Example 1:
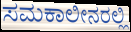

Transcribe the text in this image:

ಸಮಕಾಲೀನರಲ್ಲಿ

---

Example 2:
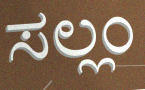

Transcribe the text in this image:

ಸಲ್ಲಂ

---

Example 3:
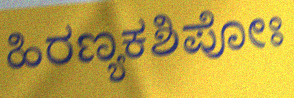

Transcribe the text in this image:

ಹಿರಣ್ಯಕಶಿಪೋಃ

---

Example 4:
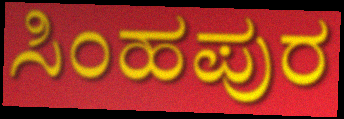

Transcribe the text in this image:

ಸಿಂಹಪುರ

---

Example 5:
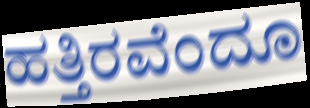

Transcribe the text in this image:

ಹತ್ತಿರವೆಂದೂ